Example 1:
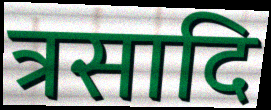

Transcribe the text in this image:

त्रसादि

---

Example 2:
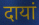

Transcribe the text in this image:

दायां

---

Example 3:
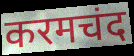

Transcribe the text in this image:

करमचंद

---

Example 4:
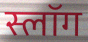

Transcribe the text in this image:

स्लॉग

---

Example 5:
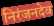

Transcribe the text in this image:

निरंजनदेव